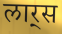
लार्स